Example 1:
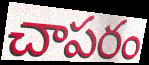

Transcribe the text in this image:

చాపరం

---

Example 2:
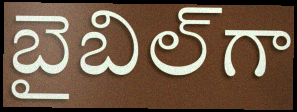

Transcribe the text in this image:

బైబిల్‌గా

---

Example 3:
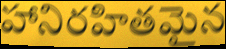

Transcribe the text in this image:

హానిరహితమైన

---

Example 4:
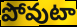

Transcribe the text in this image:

పోవుటా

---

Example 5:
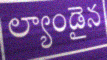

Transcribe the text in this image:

ల్యాండైన